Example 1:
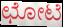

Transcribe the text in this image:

ಛೋಟೆ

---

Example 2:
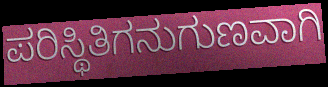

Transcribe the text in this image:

ಪರಿಸ್ಥಿತಿಗನುಗುಣವಾಗಿ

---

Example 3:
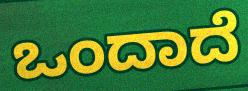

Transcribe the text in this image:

ಒಂದಾದೆ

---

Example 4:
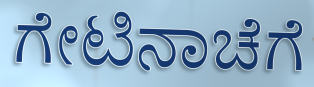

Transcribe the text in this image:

ಗೇಟಿನಾಚೆಗೆ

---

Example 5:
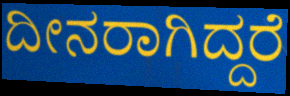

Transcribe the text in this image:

ದೀನರಾಗಿದ್ದರೆ